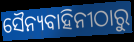
ସୈନ୍ୟବାହିନୀଠାରୁ